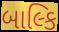
બાલ્કિ